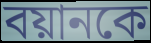
বয়ানকে